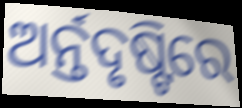
ଅର୍ନ୍ତଦୃଷ୍ଟିରେ